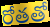
రోతతో